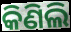
କିଣିଲି